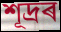
শূদ্ৰৰ